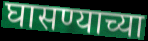
घासण्याच्या